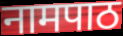
नामपाठ